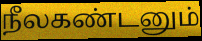
நீலகண்டனும்